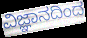
ವಿಜ್ಞಾನದಿಂದ